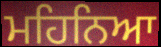
ਮਹਿਨਿਆ